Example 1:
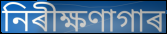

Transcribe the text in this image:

নিৰীক্ষণাগাৰ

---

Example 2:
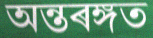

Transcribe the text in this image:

অন্তৰঙ্গত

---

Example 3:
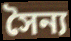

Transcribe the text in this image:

সৈন্য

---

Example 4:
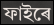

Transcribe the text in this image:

ফাইৰে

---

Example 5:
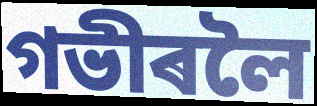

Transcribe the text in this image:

গভীৰলৈ